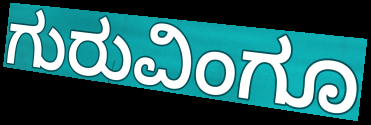
ಗುರುವಿಂಗೂ